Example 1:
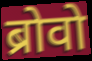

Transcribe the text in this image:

ब्रोवो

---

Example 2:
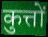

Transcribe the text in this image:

कुत्तों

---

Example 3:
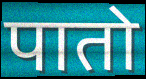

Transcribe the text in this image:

पातो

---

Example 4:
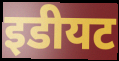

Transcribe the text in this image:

इडीयट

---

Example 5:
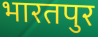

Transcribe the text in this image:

भारतपुर